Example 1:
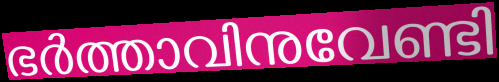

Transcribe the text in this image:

ഭർത്താവിനുവേണ്ടി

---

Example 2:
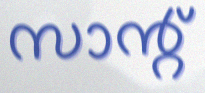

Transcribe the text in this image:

സാന്റ്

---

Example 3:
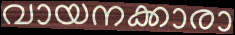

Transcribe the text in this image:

വായനക്കാരാ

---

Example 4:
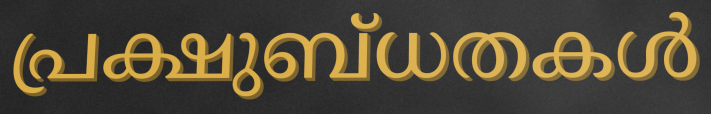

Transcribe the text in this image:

പ്രക്ഷുബ്ധതകൾ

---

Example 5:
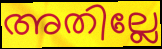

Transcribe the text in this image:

അതില്ലേ